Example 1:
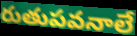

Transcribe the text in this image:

రుతుపవనాలే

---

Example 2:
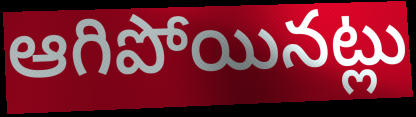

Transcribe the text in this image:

ఆగిపోయినట్లు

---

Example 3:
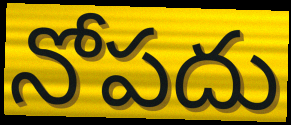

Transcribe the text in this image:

నోపదు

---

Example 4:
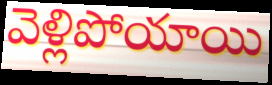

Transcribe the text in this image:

వెళ్లిపోయాయి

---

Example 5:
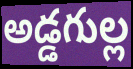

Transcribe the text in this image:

అడ్డగుల్ల